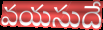
వయసుదే